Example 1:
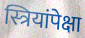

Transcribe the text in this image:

स्त्रियांपेक्षा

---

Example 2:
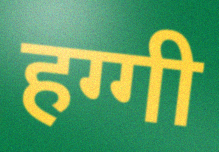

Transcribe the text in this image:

हग्गी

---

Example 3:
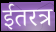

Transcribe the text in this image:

ईतरत्र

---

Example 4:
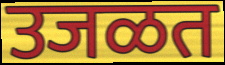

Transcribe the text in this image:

उजळत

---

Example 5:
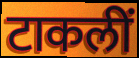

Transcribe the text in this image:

टाकलीं